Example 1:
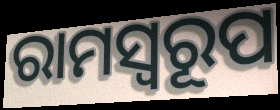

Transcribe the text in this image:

ରାମସ୍ୱରୂପ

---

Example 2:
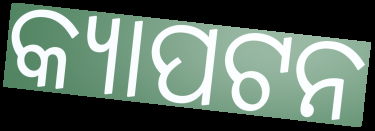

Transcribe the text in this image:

କ୍ୟାପଟନ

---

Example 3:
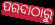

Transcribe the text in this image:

ପରଦାଠାରୁ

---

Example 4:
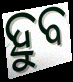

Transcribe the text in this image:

ହୁବ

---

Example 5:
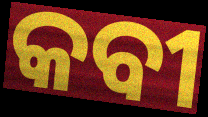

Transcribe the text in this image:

କବୀ